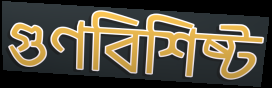
গুণবিশিষ্ট